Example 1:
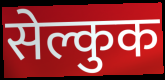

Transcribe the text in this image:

सेल्कुक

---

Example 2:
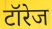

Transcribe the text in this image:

टॉरेज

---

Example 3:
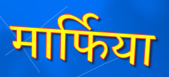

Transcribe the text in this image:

मार्फिया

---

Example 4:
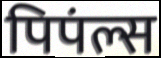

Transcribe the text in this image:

पिपंल्स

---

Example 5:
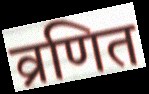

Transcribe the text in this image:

व्रणित